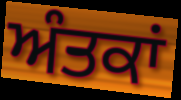
ਅੰਤਕਾਂ